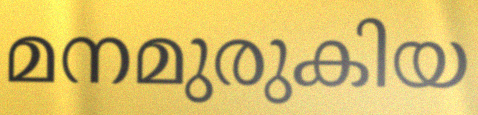
മനമുരുകിയ